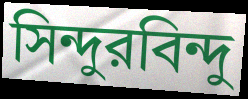
সিন্দুরবিন্দু